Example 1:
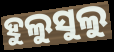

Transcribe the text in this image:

ହୁଲୁସୁଲୁ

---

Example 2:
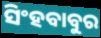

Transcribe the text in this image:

ସିଂହବାବୁର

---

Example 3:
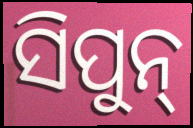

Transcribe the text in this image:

ସିପୁନ୍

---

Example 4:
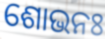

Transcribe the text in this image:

ଶୋଭନଃ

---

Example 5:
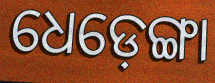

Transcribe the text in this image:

ଧେଡ଼େଙ୍ଗା